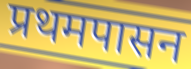
प्रथमपासन